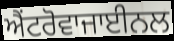
ਐਂਟਰੋਵਾਜਾਈਨਲ